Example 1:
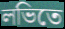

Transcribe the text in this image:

লভিতে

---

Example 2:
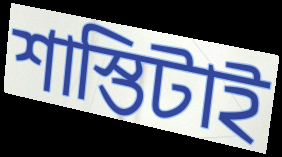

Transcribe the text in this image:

শাস্তিটাই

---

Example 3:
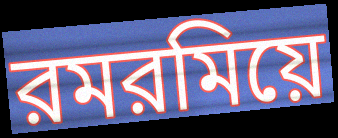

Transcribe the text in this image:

রমরমিয়ে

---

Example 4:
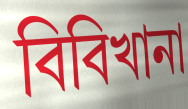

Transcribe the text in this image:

বিবিখানা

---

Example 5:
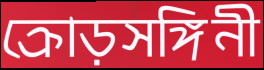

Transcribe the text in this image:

ক্রোড়সঙ্গিনী